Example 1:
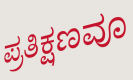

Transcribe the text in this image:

ಪ್ರತಿಕ್ಷಣವೂ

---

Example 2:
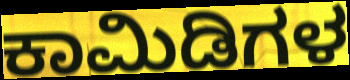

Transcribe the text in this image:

ಕಾಮಿಡಿಗಳ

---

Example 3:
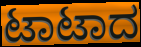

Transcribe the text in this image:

ಟಾಟಾದ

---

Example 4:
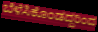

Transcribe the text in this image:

ಬೆಳೆಸಿಕೊಂಡದ್ದರಿಂದ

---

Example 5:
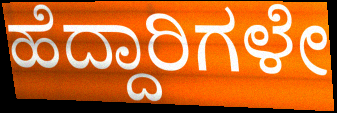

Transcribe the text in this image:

ಹೆದ್ದಾರಿಗಳೇ